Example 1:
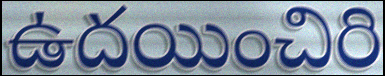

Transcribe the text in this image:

ఉదయించిరి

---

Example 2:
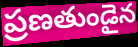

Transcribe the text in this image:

ప్రణతుండైన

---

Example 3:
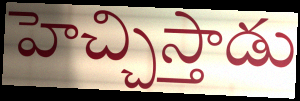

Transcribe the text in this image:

హెచ్చిస్తాడు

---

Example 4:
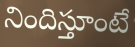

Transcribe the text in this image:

నిందిస్తూంటే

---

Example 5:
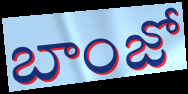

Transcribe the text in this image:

బాంజో